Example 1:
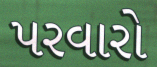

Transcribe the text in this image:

પરવારો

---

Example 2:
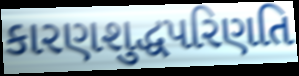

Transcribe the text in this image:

કારણશુદ્ધપરિણતિ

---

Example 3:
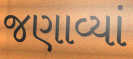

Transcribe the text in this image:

જણાવ્યાં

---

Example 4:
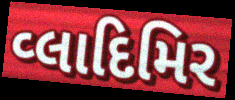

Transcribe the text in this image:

વ્લાદિમિર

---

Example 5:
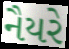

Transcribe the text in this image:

નૈયરે